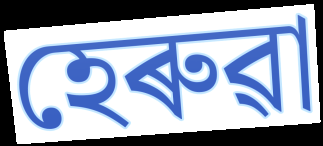
হেৰুৱা